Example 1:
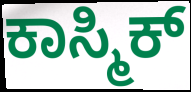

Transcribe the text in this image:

ಕಾಸ್ಮಿಕ್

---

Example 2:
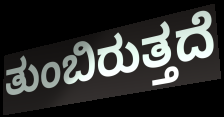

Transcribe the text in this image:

ತುಂಬಿರುತ್ತದೆ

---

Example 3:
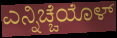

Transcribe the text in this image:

ಎನ್ನಿಚ್ಚೆಯೊಳ್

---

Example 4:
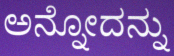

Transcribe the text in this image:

ಅನ್ನೋದನ್ನು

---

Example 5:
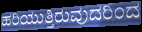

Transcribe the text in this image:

ಹರಿಯುತ್ತಿರುವುದರಿಂದ